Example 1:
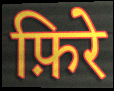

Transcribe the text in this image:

फ़िरे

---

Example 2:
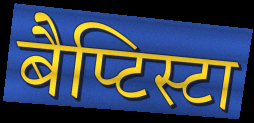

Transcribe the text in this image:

बैप्टिस्टा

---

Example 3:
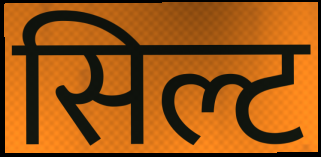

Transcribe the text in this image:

सिल्ट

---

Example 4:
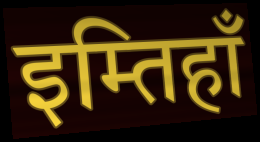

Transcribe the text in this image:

इम्तिहाँ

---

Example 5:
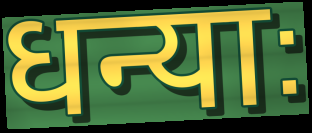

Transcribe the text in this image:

धन्याः